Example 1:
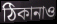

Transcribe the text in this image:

ঠিকানাও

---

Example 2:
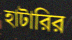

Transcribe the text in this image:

হাটারির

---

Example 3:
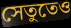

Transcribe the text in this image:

সেতুতেও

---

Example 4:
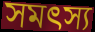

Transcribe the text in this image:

সমৎস্য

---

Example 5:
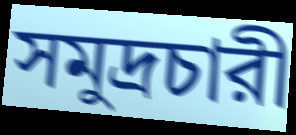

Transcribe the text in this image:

সমুদ্রচারী